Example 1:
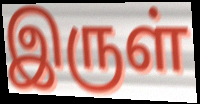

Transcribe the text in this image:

இருள்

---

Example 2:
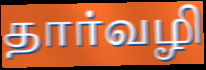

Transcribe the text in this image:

தார்வழி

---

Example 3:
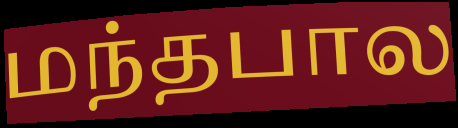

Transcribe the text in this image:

மந்தபால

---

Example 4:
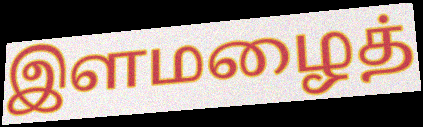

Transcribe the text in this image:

இளமழைத்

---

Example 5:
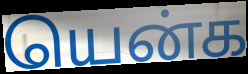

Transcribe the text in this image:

யென்க